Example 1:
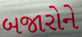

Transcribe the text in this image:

બજારોને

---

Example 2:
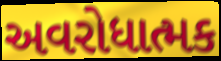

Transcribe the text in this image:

અવરોધાત્મક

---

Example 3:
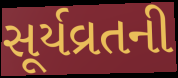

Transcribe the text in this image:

સૂર્યવ્રતની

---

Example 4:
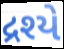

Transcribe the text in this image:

દ્રશ્યે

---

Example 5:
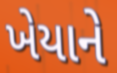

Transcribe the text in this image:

ખેયાને